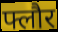
फ्लौर